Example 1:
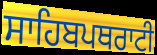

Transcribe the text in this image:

ਸਾਹਿਬਪਥਰਾਟੀ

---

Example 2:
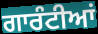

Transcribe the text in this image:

ਗਾਰੰਟੀਆਂ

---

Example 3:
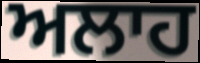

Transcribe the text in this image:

ਅਲਾਹ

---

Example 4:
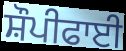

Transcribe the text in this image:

ਸ਼ੌਪੀਫਾਈ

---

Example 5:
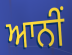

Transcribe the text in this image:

ਆਨੀਂ